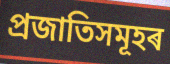
প্ৰজাতিসমূহৰ